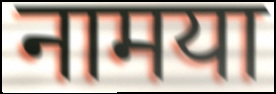
नामया